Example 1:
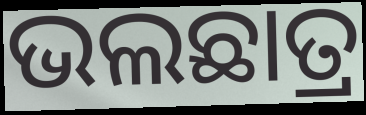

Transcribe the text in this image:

ଭଲଛାତ୍ର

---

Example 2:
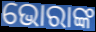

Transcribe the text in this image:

ଭୋରାଙ୍କ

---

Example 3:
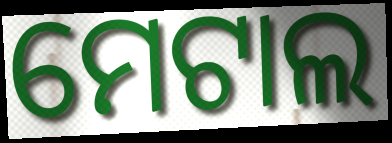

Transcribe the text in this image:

ମେଟାଲ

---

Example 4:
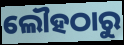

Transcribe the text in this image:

ଲୌହଠାରୁ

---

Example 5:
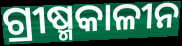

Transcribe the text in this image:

ଗ୍ରୀଷ୍ମକାଳୀନ